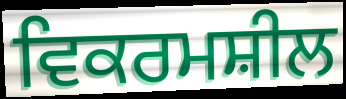
ਵਿਕਰਮਸ਼ੀਲ